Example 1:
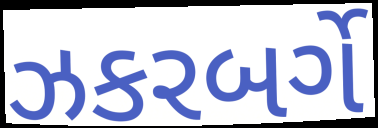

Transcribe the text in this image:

ઝકરબર્ગે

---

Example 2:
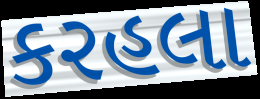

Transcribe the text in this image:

કરહલા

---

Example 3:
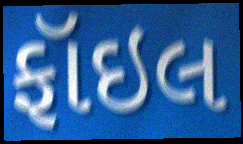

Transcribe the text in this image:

ફૉઇલ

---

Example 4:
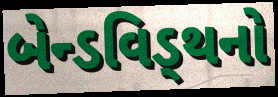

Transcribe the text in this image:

બેન્ડવિડ્થનો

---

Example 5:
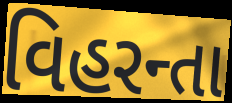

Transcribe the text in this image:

વિહરન્તા